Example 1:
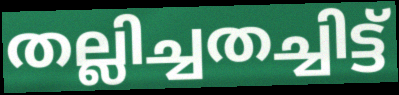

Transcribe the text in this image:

തല്ലിച്ചതച്ചിട്ട്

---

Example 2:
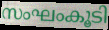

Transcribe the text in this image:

സംഘംകൂടി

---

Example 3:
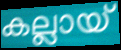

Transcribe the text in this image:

കല്ലായ്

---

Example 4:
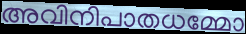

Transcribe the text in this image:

അവിനിപാതധമ്മോ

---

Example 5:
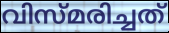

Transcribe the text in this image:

വിസ്മരിച്ചത്